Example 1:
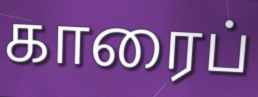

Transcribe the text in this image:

காரைப்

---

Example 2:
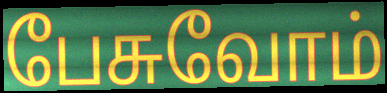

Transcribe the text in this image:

பேசுவோம்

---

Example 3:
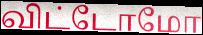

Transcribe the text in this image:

விட்டோமோ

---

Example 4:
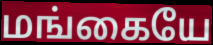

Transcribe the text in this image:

மங்கையே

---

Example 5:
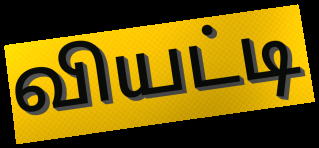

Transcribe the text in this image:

வியட்டி